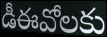
డీఈవోలకు